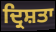
ਦ੍ਰਿਸ਼ਤਾ